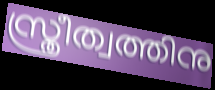
സ്ത്രീത്വത്തിനു